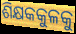
ଶିକ୍ଷକକୁଳକୁ